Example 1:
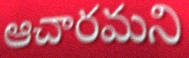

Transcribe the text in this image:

ఆచారమని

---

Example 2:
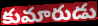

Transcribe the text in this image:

కుమారుడు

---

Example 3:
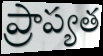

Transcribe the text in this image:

ప్రాప్యత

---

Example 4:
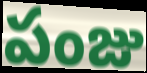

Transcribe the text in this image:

పంజు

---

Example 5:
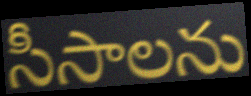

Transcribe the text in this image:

సీసాలను